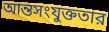
আন্তসংযুক্ততার